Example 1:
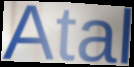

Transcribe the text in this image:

Atal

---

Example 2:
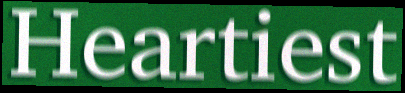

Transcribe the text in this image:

Heartiest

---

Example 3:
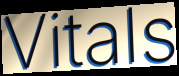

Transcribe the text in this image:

Vitals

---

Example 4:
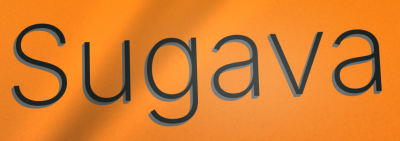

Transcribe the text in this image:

Sugava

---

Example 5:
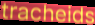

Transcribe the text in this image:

tracheids